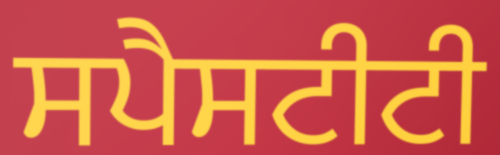
ਸਪੈਸਟੀਟੀ